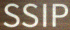
SSIP